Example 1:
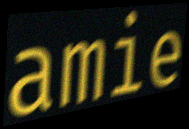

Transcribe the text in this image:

amie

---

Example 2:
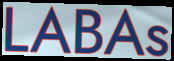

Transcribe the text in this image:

LABAs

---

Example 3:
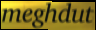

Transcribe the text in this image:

meghdut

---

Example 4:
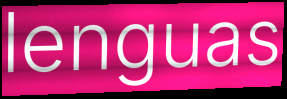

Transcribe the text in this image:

lenguas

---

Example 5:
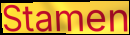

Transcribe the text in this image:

Stamen